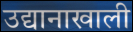
उद्यानाखाली